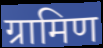
ग्रामिण